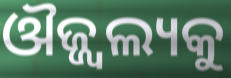
ଔଜ୍ଜ୍ଵଲ୍ୟକୁ